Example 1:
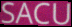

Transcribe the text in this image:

SACU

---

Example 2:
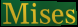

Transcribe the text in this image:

Mises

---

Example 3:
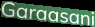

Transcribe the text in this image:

Garaasani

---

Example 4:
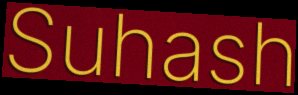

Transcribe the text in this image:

Suhash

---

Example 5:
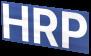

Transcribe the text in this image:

HRP